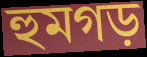
হুমগড়